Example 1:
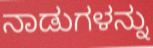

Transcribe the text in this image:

ನಾಡುಗಳನ್ನು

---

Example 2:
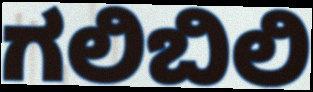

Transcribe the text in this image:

ಗಲಿಬಿಲಿ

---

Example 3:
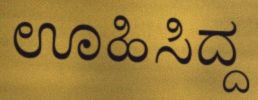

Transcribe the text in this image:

ಊಹಿಸಿದ್ದ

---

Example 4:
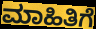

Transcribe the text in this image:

ಮಾಹಿತಿಗೆ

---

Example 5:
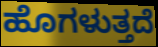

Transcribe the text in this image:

ಹೊಗಳುತ್ತದೆ